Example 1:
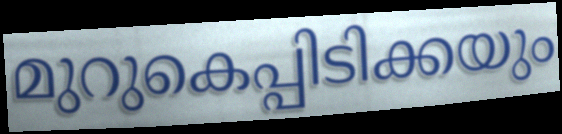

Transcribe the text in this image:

മുറുകെപ്പിടിക്കയും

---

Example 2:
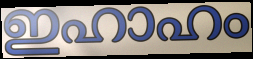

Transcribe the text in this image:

ഇഹാഹം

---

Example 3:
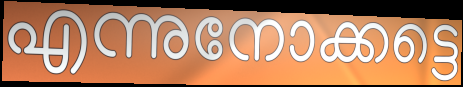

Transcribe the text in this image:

എന്നുനോക്കട്ടെ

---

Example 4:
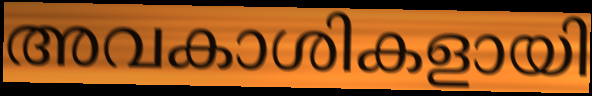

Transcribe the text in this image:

അവകാശികളായി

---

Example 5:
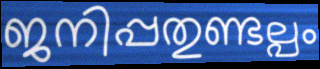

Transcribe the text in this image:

ജനിപ്പതുണ്ടല്പം